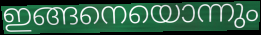
ഇങ്ങനെയൊന്നും